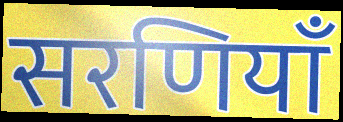
सरणियाँ